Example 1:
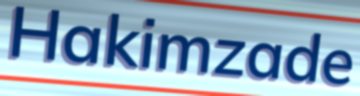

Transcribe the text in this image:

Hakimzade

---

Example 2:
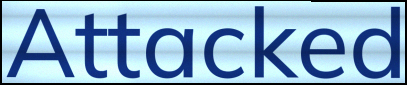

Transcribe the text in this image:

Attacked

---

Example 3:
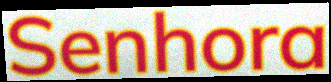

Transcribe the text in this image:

Senhora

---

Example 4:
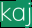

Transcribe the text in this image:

kaj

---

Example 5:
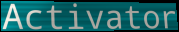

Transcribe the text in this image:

Activator